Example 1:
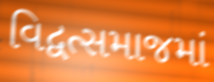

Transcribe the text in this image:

વિદ્વત્સમાજમાં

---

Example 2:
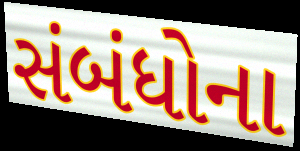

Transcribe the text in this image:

સંબંધોના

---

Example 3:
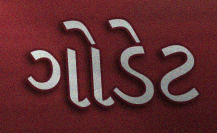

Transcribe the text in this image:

ગોડેટ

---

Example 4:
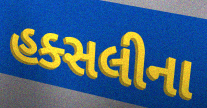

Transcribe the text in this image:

હક્સલીના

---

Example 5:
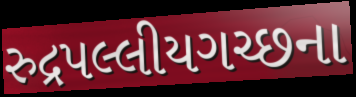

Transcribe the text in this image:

રુદ્રપલ્લીયગચ્છના